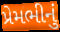
પ્રેમભીનું